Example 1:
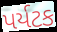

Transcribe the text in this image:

પર્યટક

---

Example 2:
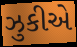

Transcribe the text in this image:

ઝુકીએ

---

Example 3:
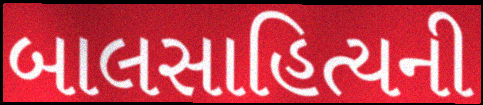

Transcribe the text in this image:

બાલસાહિત્યની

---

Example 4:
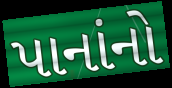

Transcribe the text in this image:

પાનાંનો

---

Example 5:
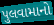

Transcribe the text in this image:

પુલવામાનો